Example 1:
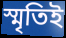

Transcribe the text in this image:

স্মৃতিই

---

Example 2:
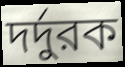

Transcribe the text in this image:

দর্দুরক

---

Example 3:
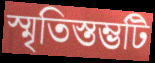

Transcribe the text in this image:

স্মৃতিস্তম্ভটি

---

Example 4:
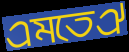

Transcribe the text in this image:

এমতেঐ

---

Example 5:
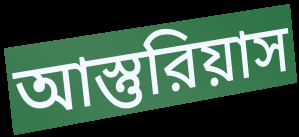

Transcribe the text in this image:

আস্তুরিয়াস